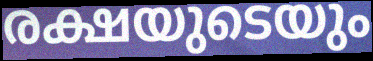
രക്ഷയുടെയും